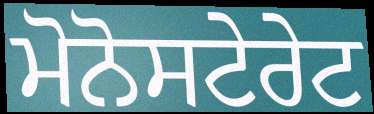
ਮੋਨੋਸਟੇਰੇਟ